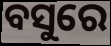
ବସୁରେ